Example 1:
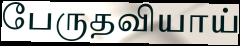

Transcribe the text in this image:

பேருதவியாய்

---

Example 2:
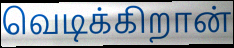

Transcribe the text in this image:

வெடிக்கிறான்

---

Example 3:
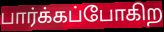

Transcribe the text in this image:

பார்க்கப்போகிற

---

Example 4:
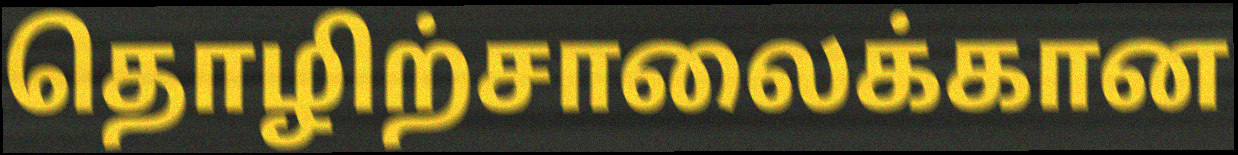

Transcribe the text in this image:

தொழிற்சாலைக்கான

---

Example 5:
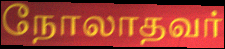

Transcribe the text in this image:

நோலாதவர்